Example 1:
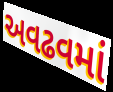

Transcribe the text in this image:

અવઢવમાં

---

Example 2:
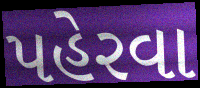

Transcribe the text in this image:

પહેરવા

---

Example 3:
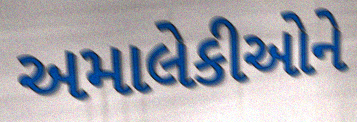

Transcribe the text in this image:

અમાલેકીઓને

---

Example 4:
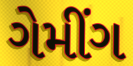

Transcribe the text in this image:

ગેમીંગ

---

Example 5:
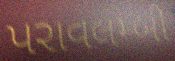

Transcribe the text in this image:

પરાવલમ્બી